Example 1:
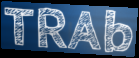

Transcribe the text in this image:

TRAb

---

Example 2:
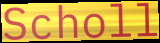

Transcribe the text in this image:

Scholl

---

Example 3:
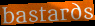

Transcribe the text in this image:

bastards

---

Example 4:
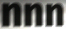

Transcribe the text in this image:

nnn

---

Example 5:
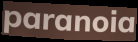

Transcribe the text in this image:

paranoia